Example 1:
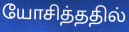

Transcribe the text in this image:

யோசித்ததில்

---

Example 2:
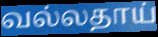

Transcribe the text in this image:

வல்லதாய்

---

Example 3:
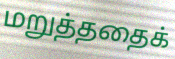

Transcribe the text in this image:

மறுத்ததைக்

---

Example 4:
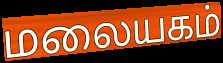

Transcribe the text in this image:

மலையகம்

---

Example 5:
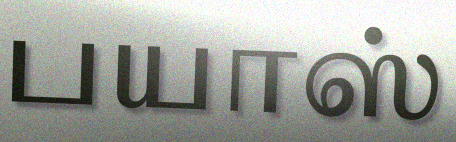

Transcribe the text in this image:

பயாஸ்